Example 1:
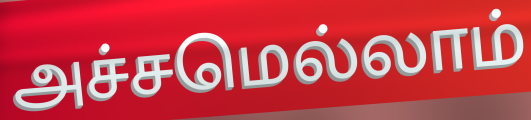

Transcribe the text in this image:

அச்சமெல்லாம்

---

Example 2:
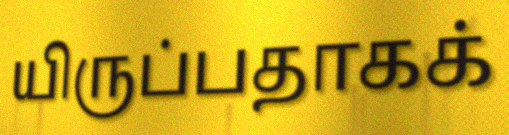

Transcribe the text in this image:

யிருப்பதாகக்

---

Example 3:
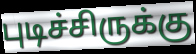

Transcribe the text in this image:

புடிச்சிருக்கு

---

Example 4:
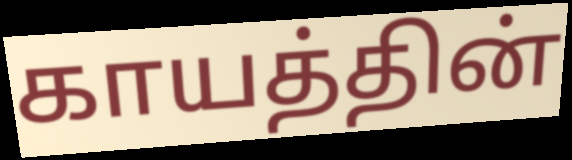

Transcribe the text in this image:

காயத்தின்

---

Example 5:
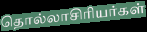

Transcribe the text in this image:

தொல்லாசிரியர்கள்